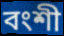
বংশী